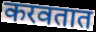
करवतात